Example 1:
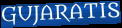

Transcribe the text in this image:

GUJARATIS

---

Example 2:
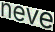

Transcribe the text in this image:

neve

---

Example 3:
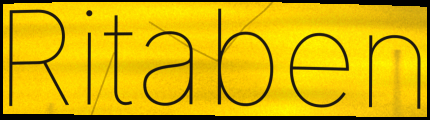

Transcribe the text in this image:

Ritaben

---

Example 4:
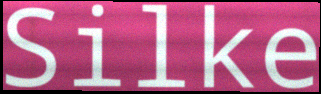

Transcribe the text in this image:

Silke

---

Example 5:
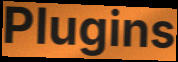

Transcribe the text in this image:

Plugins